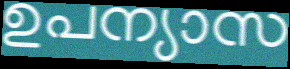
ഉപന്യാസ